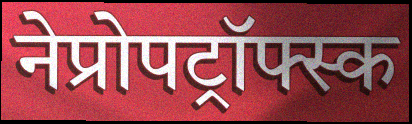
नेप्रोपट्रॉफ्स्क